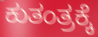
ಕುತಂತ್ರಕ್ಕೆ